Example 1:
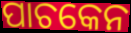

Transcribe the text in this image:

ପାଚକେନ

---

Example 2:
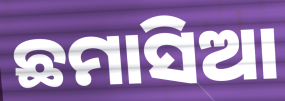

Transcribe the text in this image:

ଛମାସିଆ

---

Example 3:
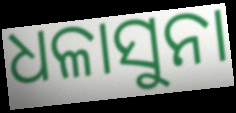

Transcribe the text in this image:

ଧଳାସୁନା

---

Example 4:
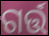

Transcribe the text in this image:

ଗର୍ତ୍ତ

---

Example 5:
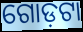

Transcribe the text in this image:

ଗୋଡ଼ଟା